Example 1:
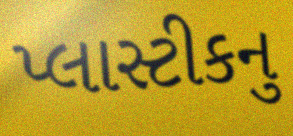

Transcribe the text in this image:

પ્લાસ્ટીકનુ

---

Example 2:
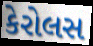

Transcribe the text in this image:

કેરોલસ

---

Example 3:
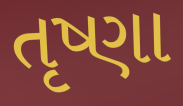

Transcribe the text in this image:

તૃષ્ણા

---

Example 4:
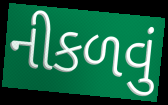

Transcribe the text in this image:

નીકળવું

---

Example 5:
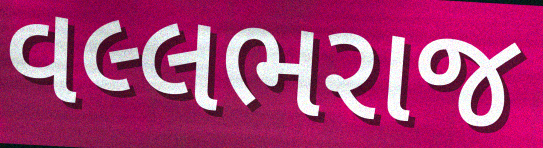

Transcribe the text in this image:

વલ્લભરાજ